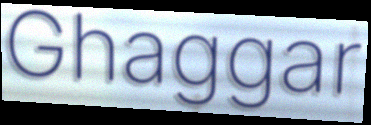
Ghaggar